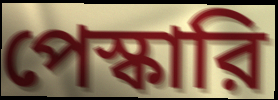
পেস্কারি